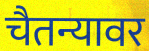
चैतन्यावर